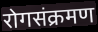
रोगसंक्रमण